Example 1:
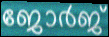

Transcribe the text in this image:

ജോർജ്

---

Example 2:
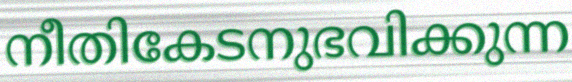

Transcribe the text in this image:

നീതികേടനുഭവിക്കുന്ന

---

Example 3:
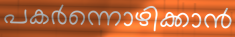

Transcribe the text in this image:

പകർന്നൊഴിക്കാൻ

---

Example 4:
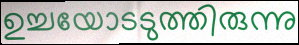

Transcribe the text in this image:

ഉച്ചയോടടുത്തിരുന്നു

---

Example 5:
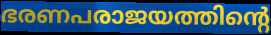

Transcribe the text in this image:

ഭരണപരാജയത്തിന്റെ